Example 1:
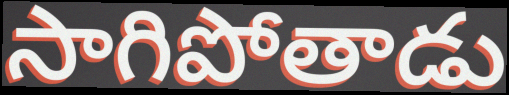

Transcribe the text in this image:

సాగిపోతాడు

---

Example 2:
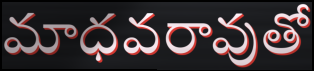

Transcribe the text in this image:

మాధవరావుతో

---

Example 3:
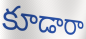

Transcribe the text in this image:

కూడారా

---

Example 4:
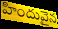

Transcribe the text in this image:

హిందువైన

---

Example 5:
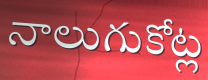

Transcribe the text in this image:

నాలుగుకోట్ల